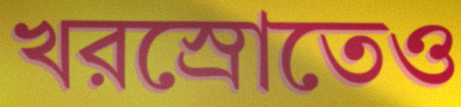
খরস্রোতেও